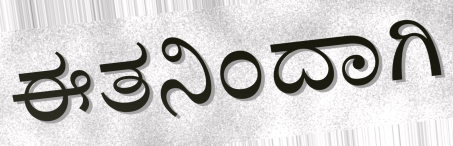
ಈತನಿಂದಾಗಿ